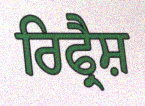
ਰਿਫ੍ਰੈਸ਼